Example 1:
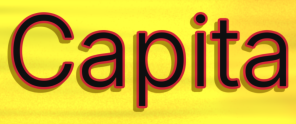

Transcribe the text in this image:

Capita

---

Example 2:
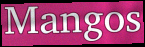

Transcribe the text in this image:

Mangos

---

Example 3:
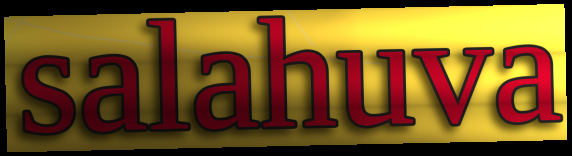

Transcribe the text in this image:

salahuva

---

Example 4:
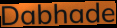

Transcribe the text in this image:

Dabhade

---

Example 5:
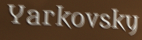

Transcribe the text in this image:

Yarkovsky